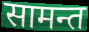
सामन्त